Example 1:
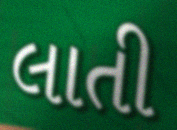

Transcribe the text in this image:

લાતી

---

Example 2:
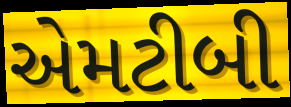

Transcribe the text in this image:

એમટીબી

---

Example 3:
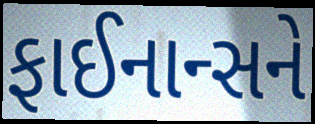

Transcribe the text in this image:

ફાઈનાન્સને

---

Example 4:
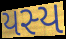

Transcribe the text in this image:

યસ્ય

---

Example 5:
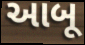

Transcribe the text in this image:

આબૂ